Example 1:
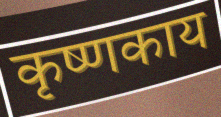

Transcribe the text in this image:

कृष्णकाय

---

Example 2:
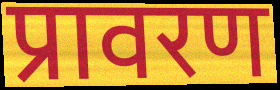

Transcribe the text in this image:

प्रावरण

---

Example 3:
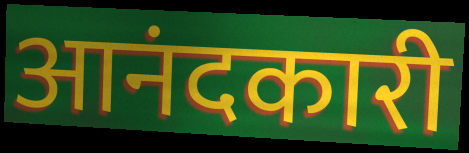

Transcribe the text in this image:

आनंदकारी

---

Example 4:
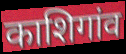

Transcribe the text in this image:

काशिगांव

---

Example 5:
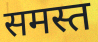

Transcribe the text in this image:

समस्त